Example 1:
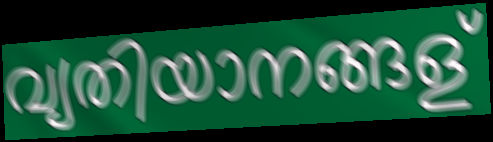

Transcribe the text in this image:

വ്യതിയാനങ്ങള്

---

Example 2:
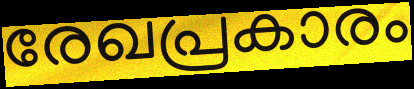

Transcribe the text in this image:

രേഖപ്രകാരം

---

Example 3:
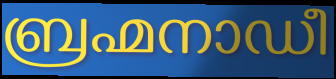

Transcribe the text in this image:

ബ്രഹ്മനാഡീ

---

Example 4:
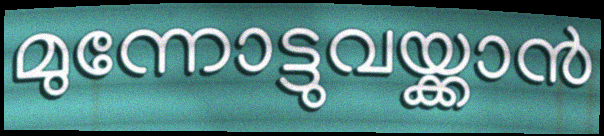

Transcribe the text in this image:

മുന്നോട്ടുവയ്ക്കാൻ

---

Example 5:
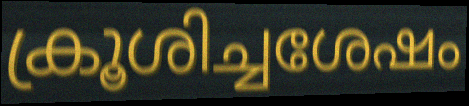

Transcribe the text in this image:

ക്രൂശിച്ചശേഷം